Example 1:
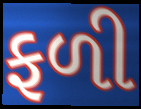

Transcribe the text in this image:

ફળી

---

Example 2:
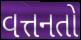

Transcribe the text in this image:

વત્તનતો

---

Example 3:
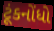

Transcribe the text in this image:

ટૂંકનોંધો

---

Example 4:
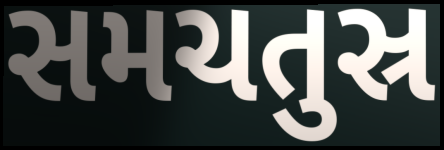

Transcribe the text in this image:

સમચતુસ્ર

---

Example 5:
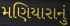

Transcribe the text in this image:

મણિયારાનું